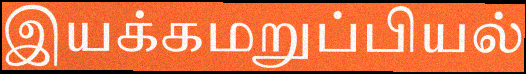
இயக்கமறுப்பியல்